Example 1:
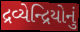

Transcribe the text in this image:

દ્રવ્યેન્દ્રિયોનું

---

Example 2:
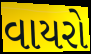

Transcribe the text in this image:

વાયરો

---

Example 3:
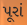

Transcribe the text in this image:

પૂરાં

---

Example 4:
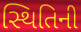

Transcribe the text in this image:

સ્થિતિની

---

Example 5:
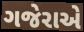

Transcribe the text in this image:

ગજેરાએ